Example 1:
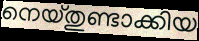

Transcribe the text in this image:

നെയ്തുണ്ടാക്കിയ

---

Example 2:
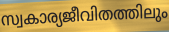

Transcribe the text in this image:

സ്വകാര്യജീവിതത്തിലും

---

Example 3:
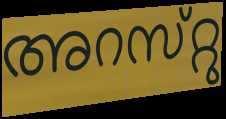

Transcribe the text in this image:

അറസ്‌റ്റു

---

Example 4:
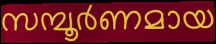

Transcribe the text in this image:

സമ്പൂർണമായ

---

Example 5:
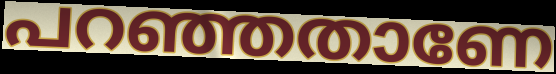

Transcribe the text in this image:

പറഞ്ഞതാണേ